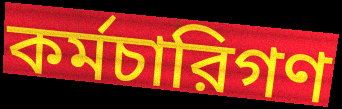
কর্মচারিগণ